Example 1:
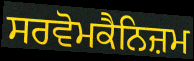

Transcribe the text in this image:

ਸਰਵੋਮਕੈਨਿਜ਼ਮ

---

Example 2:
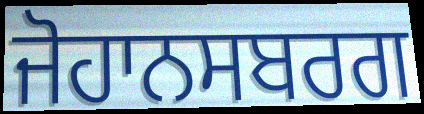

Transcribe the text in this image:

ਜੋਹਾਨਸਬਰਗ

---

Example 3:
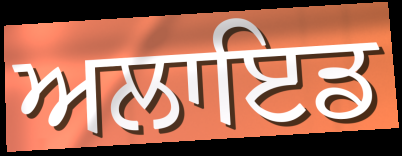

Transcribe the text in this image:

ਅਲਾਇਡ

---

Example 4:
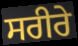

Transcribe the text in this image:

ਸਰੀਰੇ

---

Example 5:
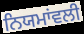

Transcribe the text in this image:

ਨਿਯਮਾਂਵਲੀ